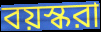
বয়স্করা